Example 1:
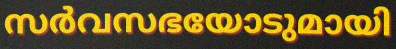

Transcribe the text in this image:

സർവസഭയോടുമായി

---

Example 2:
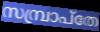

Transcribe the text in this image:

സമ്പ്രാപ്തേ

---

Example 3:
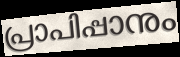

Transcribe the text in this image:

പ്രാപിപ്പാനും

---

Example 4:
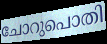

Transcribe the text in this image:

ചോറുപൊതി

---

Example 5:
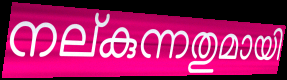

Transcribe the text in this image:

നല്കുന്നതുമായി